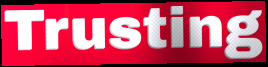
Trusting